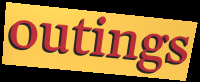
outings